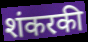
शंकरकी